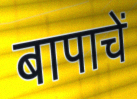
बापाचें